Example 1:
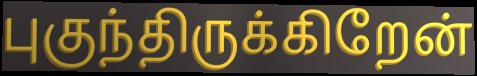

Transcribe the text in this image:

புகுந்திருக்கிறேன்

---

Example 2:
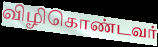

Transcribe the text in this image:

விழிகொண்டவர்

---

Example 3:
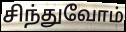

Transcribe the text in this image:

சிந்துவோம்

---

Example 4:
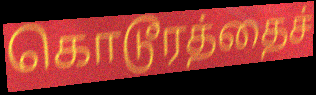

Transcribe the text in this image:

கொடூரத்தைச்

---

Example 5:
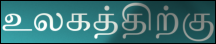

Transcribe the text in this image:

உலகத்திற்கு